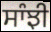
ਸਾੰਝੀ